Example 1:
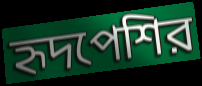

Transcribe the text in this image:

হৃদপেশির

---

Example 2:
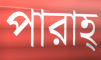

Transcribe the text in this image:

পারাহ্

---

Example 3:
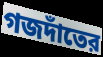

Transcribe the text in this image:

গজদাঁতের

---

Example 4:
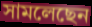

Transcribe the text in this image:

সামলেছেন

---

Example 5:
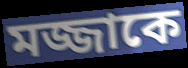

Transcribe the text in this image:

মজ্জাকে